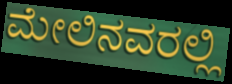
ಮೇಲಿನವರಲ್ಲಿ